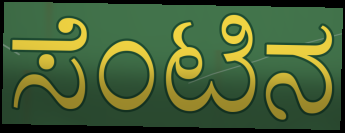
ಸೆಂಟಿನ